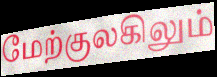
மேற்குலகிலும்